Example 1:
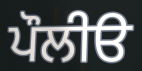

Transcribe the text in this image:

ਪੌਲੀੳ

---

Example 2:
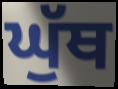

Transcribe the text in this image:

ਘੁੱਥ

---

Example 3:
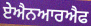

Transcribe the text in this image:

ਏਐਨਆਰਐਫ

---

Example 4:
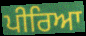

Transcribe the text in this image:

ਪੀਰਿਆ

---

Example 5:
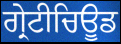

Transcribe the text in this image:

ਗ੍ਰੇਟੀਚਿਊਡ